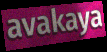
avakaya